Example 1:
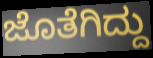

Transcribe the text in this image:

ಜೊತೆಗಿದ್ದು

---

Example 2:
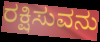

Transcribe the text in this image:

ರಕ್ಷಿಸುವನು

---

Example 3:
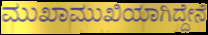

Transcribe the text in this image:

ಮುಖಾಮುಖಿಯಾಗಿದ್ದೇನೆ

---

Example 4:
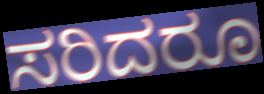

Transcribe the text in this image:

ಸರಿದರೂ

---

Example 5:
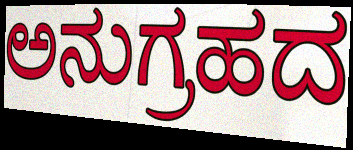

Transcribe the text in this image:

ಅನುಗ್ರಹದ